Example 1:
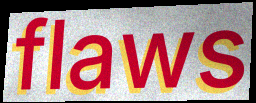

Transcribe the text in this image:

flaws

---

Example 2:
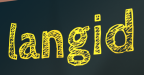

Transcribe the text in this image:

langid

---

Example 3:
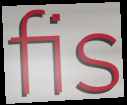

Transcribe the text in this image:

fis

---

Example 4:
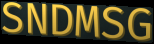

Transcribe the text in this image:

SNDMSG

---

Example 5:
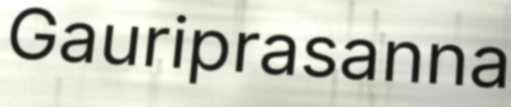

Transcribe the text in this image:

Gauriprasanna